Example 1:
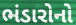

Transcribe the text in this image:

ભંડારોનો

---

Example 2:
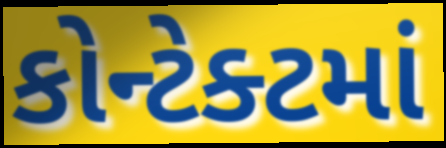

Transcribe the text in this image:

કોન્ટેક્ટમાં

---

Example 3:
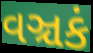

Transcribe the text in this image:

વઞ્ચકં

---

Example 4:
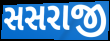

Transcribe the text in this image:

સસરાજી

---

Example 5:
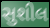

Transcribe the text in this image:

સુશીલ